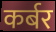
कर्बर